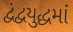
દ્વંદ્વયુદ્ધમાં